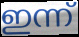
ഇന്ന്